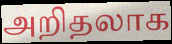
அறிதலாக